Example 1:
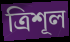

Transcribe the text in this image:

ত্রিশূল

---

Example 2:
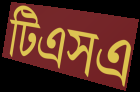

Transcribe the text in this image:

টিএসএ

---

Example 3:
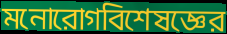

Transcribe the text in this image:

মনোরোগবিশেষজ্ঞের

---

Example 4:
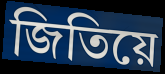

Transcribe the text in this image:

জিতিয়ে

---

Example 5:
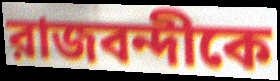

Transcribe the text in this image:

রাজবন্দীকে